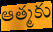
ఆత్మకు